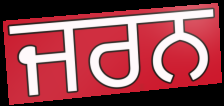
ਜਰਨ